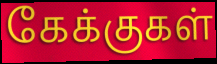
கேக்குகள்